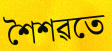
শৈশৱতে